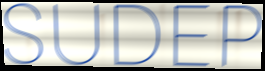
SUDEP